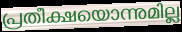
പ്രതീക്ഷയൊന്നുമില്ല